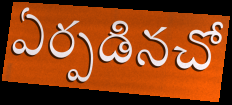
ఏర్పడినచో